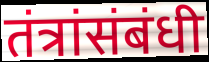
तंत्रांसंबंधी